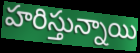
హరిస్తున్నాయి